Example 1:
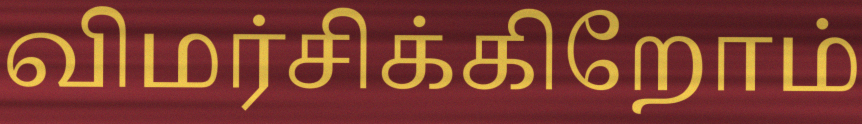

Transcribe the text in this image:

விமர்சிக்கிறோம்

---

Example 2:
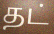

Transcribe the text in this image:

தட்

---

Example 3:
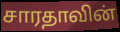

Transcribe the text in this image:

சாரதாவின்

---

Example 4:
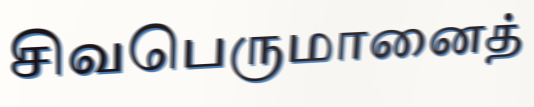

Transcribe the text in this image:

சிவபெருமானைத்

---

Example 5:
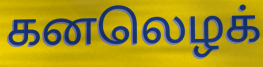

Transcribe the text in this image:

கனலெழக்